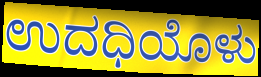
ಉದಧಿಯೊಳು